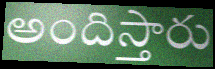
అందిస్తారు